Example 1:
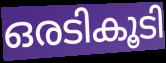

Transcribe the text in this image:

ഒരടികൂടി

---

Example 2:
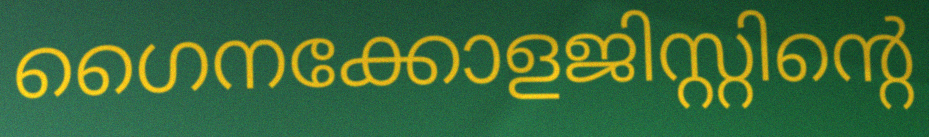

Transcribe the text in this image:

ഗൈനക്കോളജിസ്റ്റിന്റെ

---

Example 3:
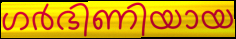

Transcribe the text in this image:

ഗർഭിണിയായ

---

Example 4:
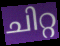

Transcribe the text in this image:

ചിറ്റ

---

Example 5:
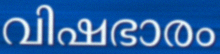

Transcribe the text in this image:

വിഷഭാരം